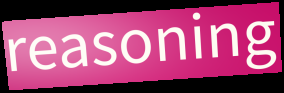
reasoning